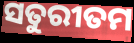
ସତୁରୀତମ